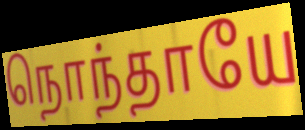
நொந்தாயே